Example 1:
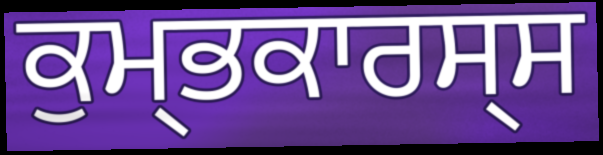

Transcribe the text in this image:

ਕੁਮ੍ਭਕਾਰਸ੍ਸ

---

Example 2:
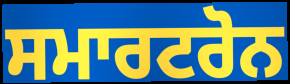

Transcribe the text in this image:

ਸਮਾਰਟਰੋਨ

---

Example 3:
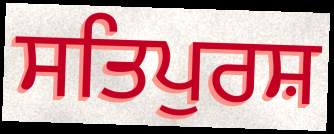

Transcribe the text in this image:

ਸਤਿਪੁਰਸ਼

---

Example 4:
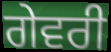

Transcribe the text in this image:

ਗੇਵਰੀ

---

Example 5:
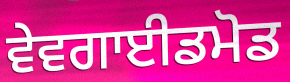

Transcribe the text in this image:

ਵੇਵਗਾਈਡਮੋਡ